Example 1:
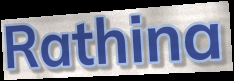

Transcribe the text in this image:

Rathina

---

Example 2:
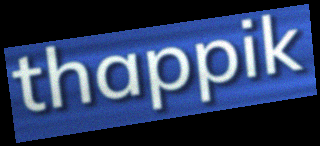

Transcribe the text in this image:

thappik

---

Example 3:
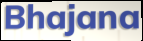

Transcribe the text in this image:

Bhajana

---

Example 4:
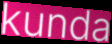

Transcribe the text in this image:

kunda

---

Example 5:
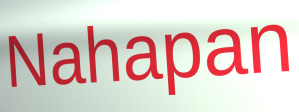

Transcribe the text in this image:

Nahapan